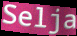
Selja